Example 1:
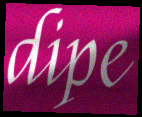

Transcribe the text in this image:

dipe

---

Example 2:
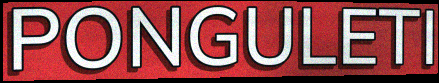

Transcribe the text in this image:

PONGULETI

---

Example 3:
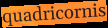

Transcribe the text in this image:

quadricornis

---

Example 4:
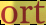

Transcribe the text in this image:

ort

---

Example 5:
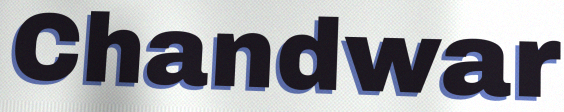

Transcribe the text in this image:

Chandwar